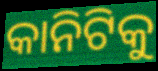
କାନିଟିକୁ